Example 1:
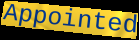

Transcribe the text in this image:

Appointed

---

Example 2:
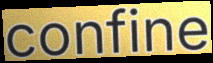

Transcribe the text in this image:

confine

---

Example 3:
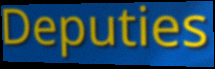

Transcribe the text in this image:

Deputies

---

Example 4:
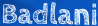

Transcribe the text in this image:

Badlani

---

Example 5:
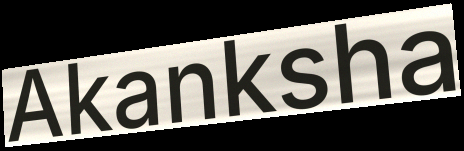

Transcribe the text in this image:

Akanksha